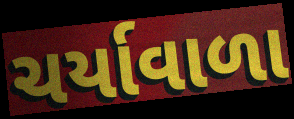
ચર્યાવાળા